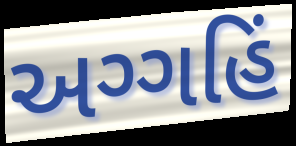
અગ્ગહિં